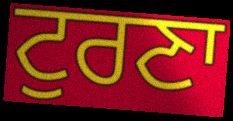
ਟੁਰਣਾ